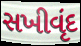
સખીવૃંદ